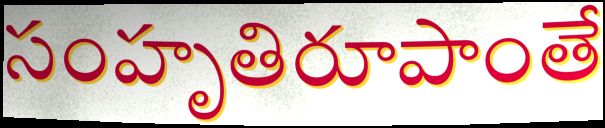
సంహృతిరూపాంతే